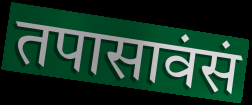
तपासावंसं